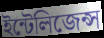
ইন্টেলিজেন্স